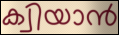
ക്വിയാൻ